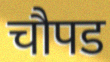
चौपड